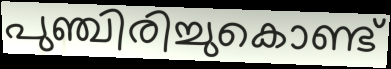
പുഞ്ചിരിച്ചുകൊണ്ട്